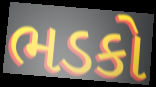
ભડકો